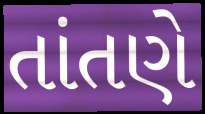
તાંતણે